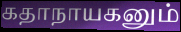
கதாநாயகனும்